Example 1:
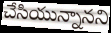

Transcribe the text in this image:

చేసియున్నానని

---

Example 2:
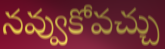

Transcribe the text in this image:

నవ్వుకోవచ్చు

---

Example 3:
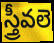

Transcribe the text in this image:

స్త్రీవలె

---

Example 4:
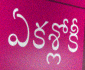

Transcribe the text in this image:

ఏకశ్లోకీ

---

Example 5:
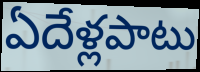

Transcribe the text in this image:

ఏదేళ్లపాటు